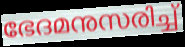
ഭേദമനുസരിച്ച്